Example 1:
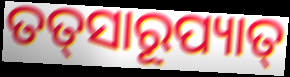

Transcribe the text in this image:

ତତ୍‌ସାରୂପ୍ୟାତ୍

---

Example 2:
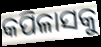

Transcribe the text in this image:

କପିଳାସକୁ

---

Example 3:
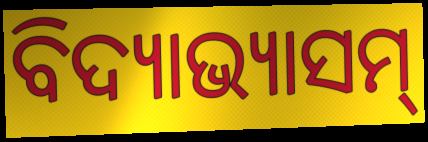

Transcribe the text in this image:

ବିଦ୍ୟାଭ୍ୟାସମ୍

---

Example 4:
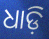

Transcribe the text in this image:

ଧାଡ଼ି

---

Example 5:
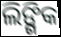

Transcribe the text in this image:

ଲିଙ୍ଗିକ